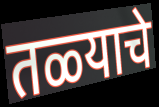
तळ्याचे